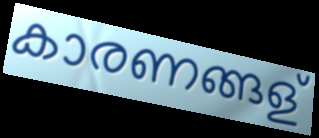
കാരണങ്ങള്